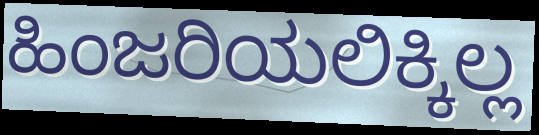
ಹಿಂಜರಿಯಲಿಕ್ಕಿಲ್ಲ